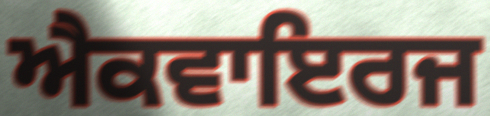
ਐਕਵਾਇਰਜ